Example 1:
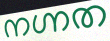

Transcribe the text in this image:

നഗ്നത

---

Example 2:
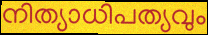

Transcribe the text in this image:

നിത്യാധിപത്യവും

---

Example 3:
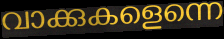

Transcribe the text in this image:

വാക്കുകളെന്നെ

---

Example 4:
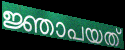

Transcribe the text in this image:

ജ്ഞാപയത്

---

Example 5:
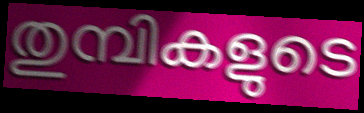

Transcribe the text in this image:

തുമ്പികളുടെ